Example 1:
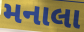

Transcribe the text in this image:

મનાલા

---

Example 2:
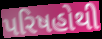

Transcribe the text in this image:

પરિષહોથી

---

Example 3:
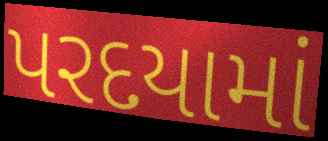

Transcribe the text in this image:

પરદયામાં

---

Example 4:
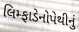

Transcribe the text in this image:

લિમ્ફાડેનોપેથીનું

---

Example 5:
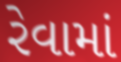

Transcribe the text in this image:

રેવામાં